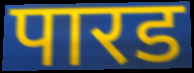
पारड